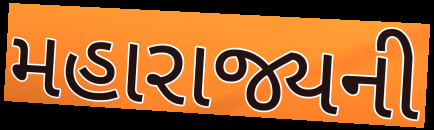
મહારાજ્યની